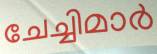
ചേച്ചിമാർ